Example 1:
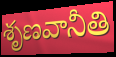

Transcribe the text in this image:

శృణవానీతి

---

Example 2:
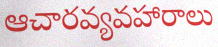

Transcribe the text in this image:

ఆచారవ్యవహారాలు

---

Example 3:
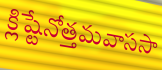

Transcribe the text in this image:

క్లిష్టేనోత్తమవాససా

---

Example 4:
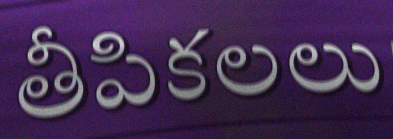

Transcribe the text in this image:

తీపికలలు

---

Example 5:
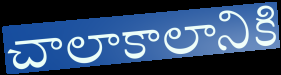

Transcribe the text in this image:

చాలాకాలానికి